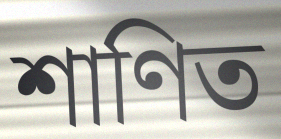
শাণিত